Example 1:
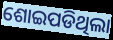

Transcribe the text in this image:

ଶୋଇପଡିଥିଲା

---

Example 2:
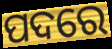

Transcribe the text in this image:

ପଦରେ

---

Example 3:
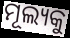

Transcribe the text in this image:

ମୂଲ୍ୟକୁ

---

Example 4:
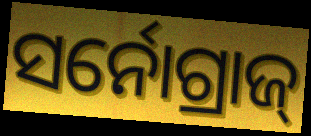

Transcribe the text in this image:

ସର୍ନୋଗ୍ରାଜ୍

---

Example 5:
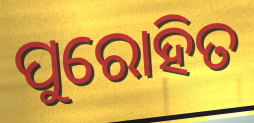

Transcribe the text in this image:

ପୁରୋହିତ